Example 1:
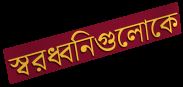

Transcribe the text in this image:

স্বরধ্বনিগুলোকে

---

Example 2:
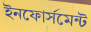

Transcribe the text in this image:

ইনফোর্সমেন্ট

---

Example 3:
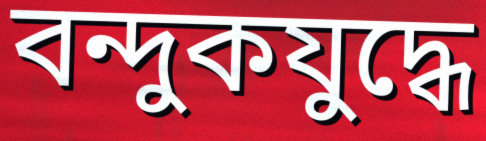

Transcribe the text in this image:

বন্দুকযুদ্ধে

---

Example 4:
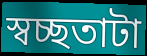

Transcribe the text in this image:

স্বচ্ছতাটা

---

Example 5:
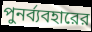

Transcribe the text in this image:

পুনর্ব্যবহারের